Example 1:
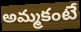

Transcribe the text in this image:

అమ్మకంటే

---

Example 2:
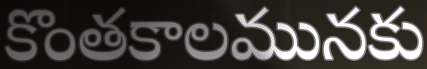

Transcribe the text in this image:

కొంతకాలమునకు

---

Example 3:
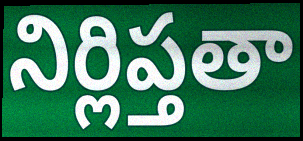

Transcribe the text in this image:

నిర్లిప్తతా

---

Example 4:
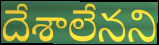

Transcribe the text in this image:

దేశాలేనని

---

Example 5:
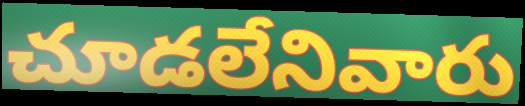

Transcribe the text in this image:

చూడలేనివారు